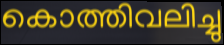
കൊത്തിവലിച്ചു